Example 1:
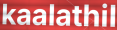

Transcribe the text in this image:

kaalathil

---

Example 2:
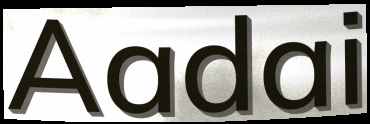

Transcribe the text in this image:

Aadai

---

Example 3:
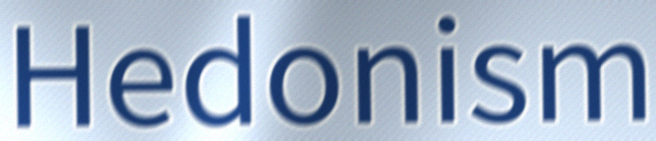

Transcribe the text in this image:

Hedonism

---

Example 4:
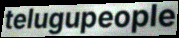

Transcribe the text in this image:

telugupeople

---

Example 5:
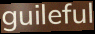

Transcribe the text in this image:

guileful